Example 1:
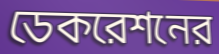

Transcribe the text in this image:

ডেকরেশনের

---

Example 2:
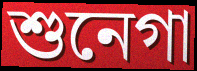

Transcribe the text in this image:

শুনেগা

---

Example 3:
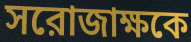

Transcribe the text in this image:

সরোজাক্ষকে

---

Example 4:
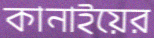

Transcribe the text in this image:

কানাইয়ের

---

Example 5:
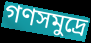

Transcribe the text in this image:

গণসমুদ্রে